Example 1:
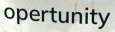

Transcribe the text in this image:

opertunity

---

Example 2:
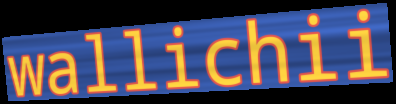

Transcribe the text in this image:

wallichii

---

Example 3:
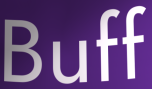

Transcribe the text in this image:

Buff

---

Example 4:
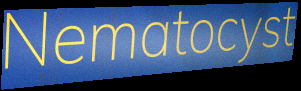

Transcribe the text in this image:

Nematocyst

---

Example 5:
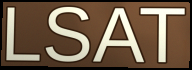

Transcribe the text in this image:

LSAT